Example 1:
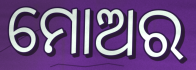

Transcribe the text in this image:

ମୋଅର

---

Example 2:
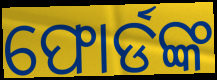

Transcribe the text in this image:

ଫୋର୍ଡଙ୍କ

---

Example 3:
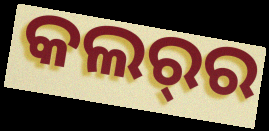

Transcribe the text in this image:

କଲର୍‌ର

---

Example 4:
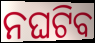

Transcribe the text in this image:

ନଘଟିବ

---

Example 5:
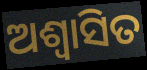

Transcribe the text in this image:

ଅଶ୍ୱାସିତ